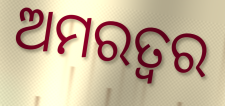
ଅମରତ୍ୱର